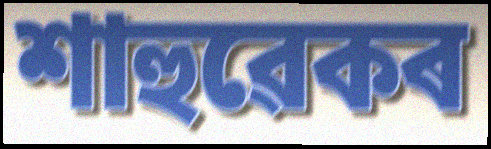
শাহুৱেকৰ